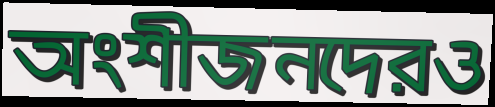
অংশীজনদেরও